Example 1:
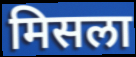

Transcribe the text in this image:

मिसला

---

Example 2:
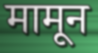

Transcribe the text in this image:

मामून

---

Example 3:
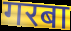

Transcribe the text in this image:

गरबा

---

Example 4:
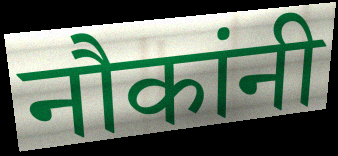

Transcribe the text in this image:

नौकांनी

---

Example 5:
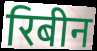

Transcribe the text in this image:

रिबीन